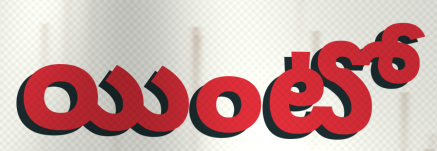
యింటో